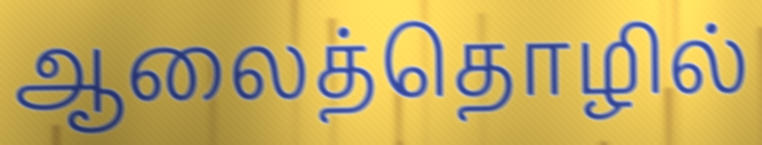
ஆலைத்தொழில்